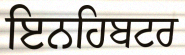
ਇਨਹਿਬਟਰ